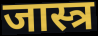
जास्त्र